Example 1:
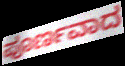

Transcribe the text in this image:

ಪೂರ್ಣವಾದ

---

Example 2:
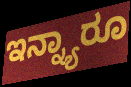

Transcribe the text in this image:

ಇನ್ನ್ಯಾರೂ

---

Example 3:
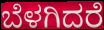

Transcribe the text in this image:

ಬೆಳಗಿದರೆ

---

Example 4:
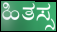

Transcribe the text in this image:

ಹಿತಸ್ಸ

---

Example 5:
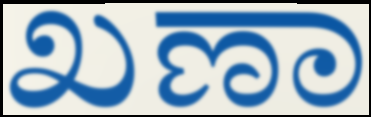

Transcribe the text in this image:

ಖಣಾ